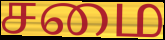
சமை